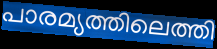
പാരമ്യത്തിലെത്തി